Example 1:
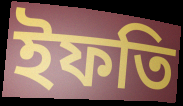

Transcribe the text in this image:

ইফতি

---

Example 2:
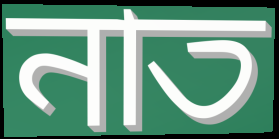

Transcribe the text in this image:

নাত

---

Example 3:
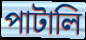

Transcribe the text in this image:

পাটালি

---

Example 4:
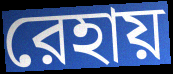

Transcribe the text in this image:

রেহায়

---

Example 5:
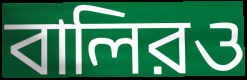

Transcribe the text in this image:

বালিরও